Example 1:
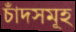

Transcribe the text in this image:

চাঁদসমূহ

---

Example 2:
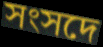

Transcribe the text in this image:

সংসদে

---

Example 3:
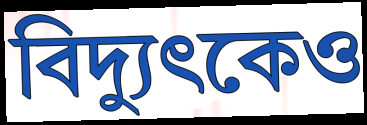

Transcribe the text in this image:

বিদ্যুৎকেও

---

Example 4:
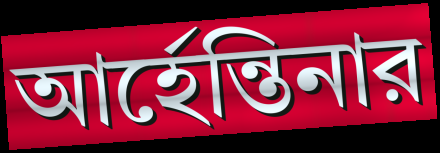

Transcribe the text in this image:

আর্হেন্তিনার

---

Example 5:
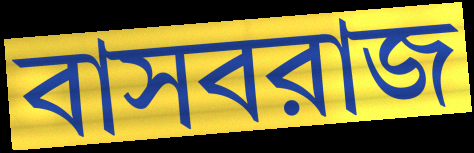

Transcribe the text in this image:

বাসবরাজ